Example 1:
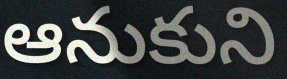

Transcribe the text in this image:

ఆనుకుని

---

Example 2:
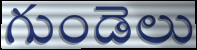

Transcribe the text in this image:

గుండెలు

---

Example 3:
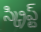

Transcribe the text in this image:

స్క్రిప్ట్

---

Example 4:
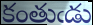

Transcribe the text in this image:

కంతుఁడు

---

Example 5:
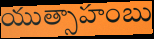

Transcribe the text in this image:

యుత్సాహంబు